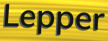
Lepper